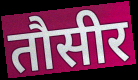
तौसीर